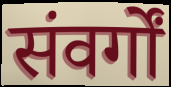
संवर्गों